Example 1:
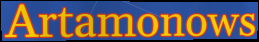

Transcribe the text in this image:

Artamonows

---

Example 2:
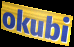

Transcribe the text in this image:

okubi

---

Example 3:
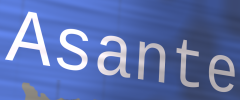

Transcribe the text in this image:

Asante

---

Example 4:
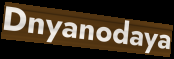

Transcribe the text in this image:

Dnyanodaya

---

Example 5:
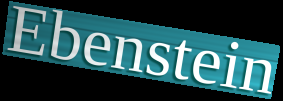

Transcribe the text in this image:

Ebenstein